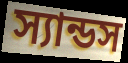
স্যান্ডস